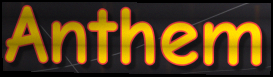
Anthem